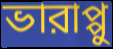
ভারাপ্পু